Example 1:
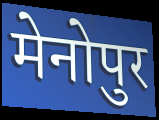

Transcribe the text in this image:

मेनोपुर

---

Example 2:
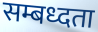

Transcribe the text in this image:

सम्बध्दता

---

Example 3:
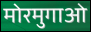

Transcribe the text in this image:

मोरमुगाओ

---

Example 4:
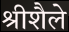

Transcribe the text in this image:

श्रीशैले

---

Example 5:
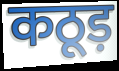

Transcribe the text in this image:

कठूड़